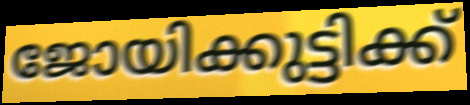
ജോയിക്കുട്ടിക്ക്